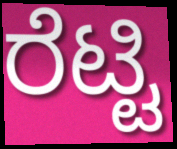
ರೆಟ್ಟಿ